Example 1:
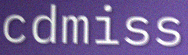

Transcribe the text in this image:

cdmiss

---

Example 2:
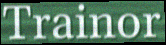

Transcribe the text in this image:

Trainor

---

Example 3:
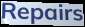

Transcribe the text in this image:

Repairs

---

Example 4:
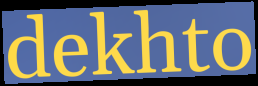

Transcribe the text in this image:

dekhto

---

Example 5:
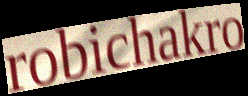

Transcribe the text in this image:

robichakro